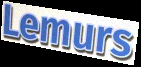
Lemurs